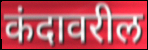
कंदावरील